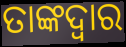
ତାଙ୍କଦ୍ୱାର